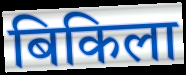
बिकिला